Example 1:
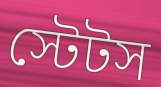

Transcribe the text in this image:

স্টেটস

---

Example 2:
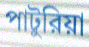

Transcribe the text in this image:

পাটুরিয়া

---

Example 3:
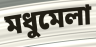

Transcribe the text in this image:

মধুমেলা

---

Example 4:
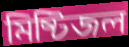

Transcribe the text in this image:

মিষ্টিজল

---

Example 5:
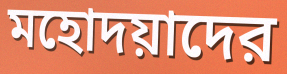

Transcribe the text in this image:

মহোদয়াদের